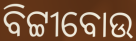
ବିଟ୍ଟୀବୋଉ